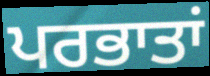
ਪਰਭਾਤਾਂ